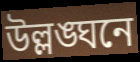
উল্লঙ্ঘনে